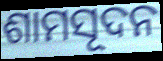
ଶାମସୂଦନ